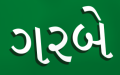
ગરબે